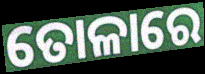
ତୋଳାରେ